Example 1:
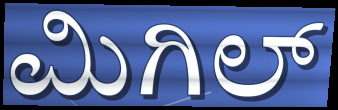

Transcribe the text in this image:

ಮಿಗಿಲ್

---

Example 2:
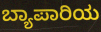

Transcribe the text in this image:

ಬ್ಯಾಪಾರಿಯ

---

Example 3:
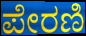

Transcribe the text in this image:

ಪೇರಣಿ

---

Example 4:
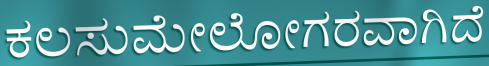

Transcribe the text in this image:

ಕಲಸುಮೇಲೋಗರವಾಗಿದೆ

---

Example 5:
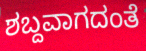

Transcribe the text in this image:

ಶಬ್ದವಾಗದಂತೆ